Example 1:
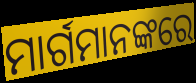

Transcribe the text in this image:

ମାର୍ଗମାନଙ୍କରେ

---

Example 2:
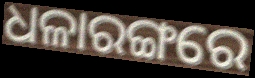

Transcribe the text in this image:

ଧଳାରଙ୍ଗରେ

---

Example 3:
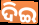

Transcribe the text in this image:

ଦିଇ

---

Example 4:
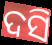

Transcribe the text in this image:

ଦସି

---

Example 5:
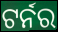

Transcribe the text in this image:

ଟର୍ନର